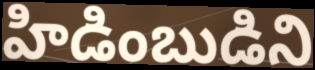
హిడింబుడిని